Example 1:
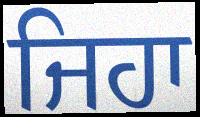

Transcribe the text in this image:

ਜਿਹਾ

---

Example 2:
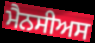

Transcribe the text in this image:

ਮੈਨਸੀਅਸ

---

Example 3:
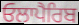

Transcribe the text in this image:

ਓਲਾਪੈਰਿਬ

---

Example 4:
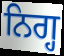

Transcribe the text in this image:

ਨਿਗ੍ਹ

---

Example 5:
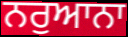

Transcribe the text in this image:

ਨਰੁਆਨਾ